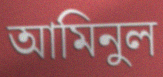
আমিনুল